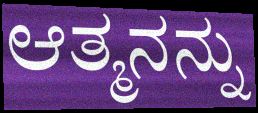
ಆತ್ಮನನ್ನು